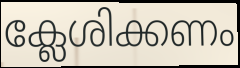
ക്ലേശിക്കണം